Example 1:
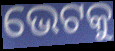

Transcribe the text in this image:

ଭେଟକୁ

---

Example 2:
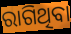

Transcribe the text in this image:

ରାଗିଥିବା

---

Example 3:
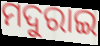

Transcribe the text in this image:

ମଦୁରାଇ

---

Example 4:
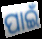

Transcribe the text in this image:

ପାଇଁ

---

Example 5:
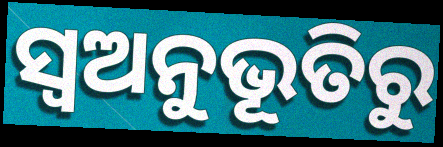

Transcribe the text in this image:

ସ୍ୱଅନୁଭୂତିରୁ